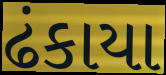
ઢંકાયા